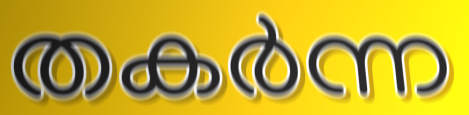
തകർന്ന